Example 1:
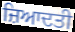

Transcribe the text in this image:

ਜ਼ਿਆਦਤੀ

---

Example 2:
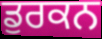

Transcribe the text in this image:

ਡੁਰਕਨ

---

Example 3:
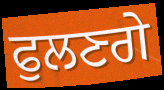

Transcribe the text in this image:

ਫੁਲਣਗੇ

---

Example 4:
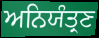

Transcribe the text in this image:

ਅਨਿਯੰਤ੍ਰਣ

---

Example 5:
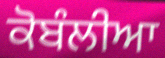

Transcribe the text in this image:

ਕੋਬੰਲੀਆ